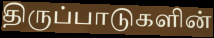
திருப்பாடுகளின்